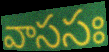
వాససః